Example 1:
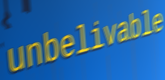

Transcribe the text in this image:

unbelivable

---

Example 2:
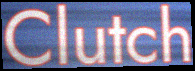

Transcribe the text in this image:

Clutch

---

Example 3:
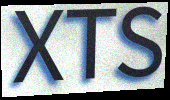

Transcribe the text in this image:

XTS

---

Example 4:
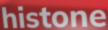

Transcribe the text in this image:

histone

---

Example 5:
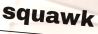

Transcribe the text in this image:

squawk